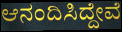
ಆನಂದಿಸಿದ್ದೇವೆ